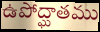
ఉపోద్ఘాతము